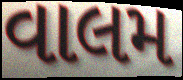
વાલમ